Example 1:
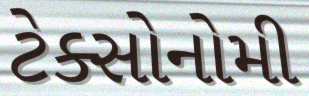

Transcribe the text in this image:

ટેક્સોનોમી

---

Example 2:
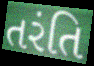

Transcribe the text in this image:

તરંતિ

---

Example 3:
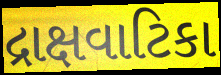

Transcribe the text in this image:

દ્રાક્ષવાટિકા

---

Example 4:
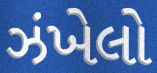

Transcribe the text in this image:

ઝંખેલો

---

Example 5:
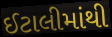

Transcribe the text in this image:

ઈટાલીમાંથી